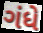
ગંધે